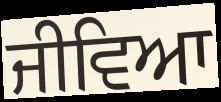
ਜੀਵਿਆ